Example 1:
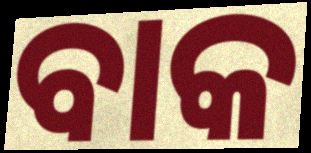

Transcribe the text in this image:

ବାକ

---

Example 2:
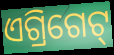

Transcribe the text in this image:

ଏଗ୍ରିଗେଟ୍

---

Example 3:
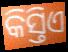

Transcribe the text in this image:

କିସ୍ତିଏ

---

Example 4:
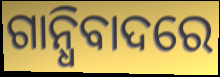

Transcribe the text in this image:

ଗାନ୍ଧିବାଦରେ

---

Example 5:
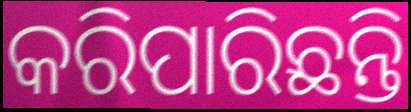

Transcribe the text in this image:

କରିପାରିଛନ୍ତି